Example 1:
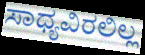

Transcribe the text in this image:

ಸಾಧ್ಯವಿರಲಿಲ್ಲ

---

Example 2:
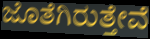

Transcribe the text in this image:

ಜೊತೆಗಿರುತ್ತೇವೆ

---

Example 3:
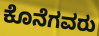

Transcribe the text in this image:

ಕೊನೆಗವರು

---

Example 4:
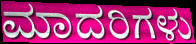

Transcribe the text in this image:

ಮಾದರಿಗಳು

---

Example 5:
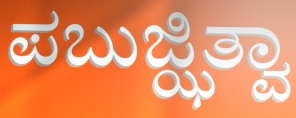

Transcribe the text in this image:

ಪಬುಜ್ಝಿತ್ವಾ